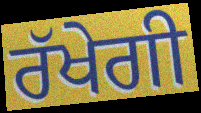
ਰੱਖੇਗੀ